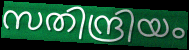
സതിന്ദ്രിയം